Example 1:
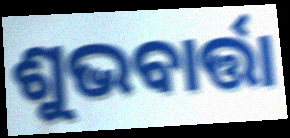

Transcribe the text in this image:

ଶୁଭବାର୍ତ୍ତା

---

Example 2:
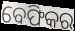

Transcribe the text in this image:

ବେଫିକର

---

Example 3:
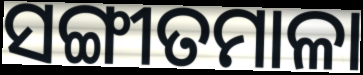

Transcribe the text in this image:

ସଙ୍ଗୀତମାଳା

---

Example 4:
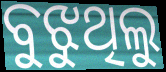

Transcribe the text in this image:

ବୁଝୁଥିଲୁ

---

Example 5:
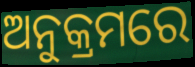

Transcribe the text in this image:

ଅନୁକ୍ରମରେ